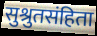
सुश्रुतसंहिता